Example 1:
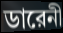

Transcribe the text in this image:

ডারেনী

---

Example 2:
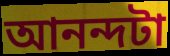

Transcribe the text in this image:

আনন্দটা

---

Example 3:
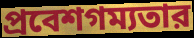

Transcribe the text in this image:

প্রবেশগম্যতার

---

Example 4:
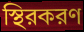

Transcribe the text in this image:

স্থিরকরণ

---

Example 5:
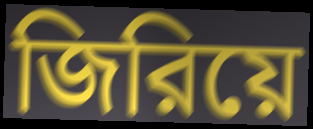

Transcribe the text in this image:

জিরিয়ে